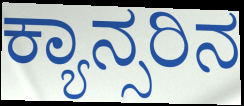
ಕ್ಯಾನ್ಸರಿನ